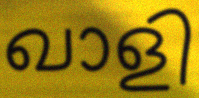
ഖാളി